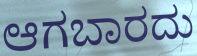
ಆಗಬಾರದು